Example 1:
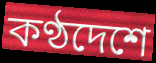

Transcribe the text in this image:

কণ্ঠদেশে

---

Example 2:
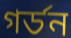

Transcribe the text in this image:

গর্ডন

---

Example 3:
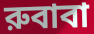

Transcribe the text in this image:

রুবাবা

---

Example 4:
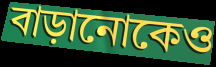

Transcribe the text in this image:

বাড়ানোকেও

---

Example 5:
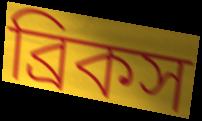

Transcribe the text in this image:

ব্রিকস